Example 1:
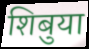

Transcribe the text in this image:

शिबुया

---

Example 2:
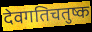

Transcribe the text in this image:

देवगतिचतुष्क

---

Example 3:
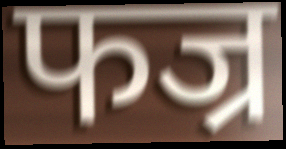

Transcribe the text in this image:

फज्र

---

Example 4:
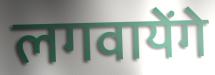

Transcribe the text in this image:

लगवायेंगे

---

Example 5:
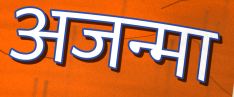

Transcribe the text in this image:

अजन्‍मा